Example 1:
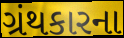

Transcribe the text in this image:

ગ્રંથકારના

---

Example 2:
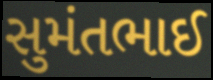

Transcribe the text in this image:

સુમંતભાઈ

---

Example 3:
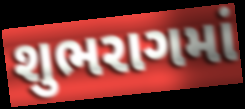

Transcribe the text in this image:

શુભરાગમાં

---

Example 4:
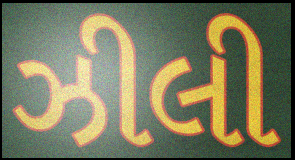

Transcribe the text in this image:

ઝીલી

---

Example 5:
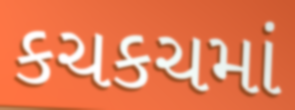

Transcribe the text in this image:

કચકચમાં